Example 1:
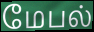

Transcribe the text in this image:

மேபல்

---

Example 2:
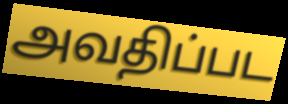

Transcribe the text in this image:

அவதிப்பட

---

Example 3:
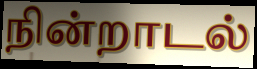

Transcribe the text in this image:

நின்றாடல்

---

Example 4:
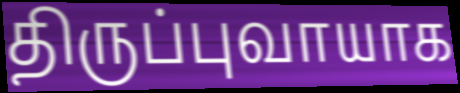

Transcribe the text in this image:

திருப்புவாயாக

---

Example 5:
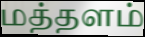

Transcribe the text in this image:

மத்தளம்